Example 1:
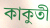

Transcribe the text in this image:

কাকুতী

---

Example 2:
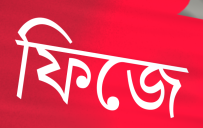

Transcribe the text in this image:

ফিজে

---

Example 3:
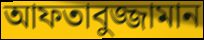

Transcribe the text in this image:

আফতাবুজ্জামান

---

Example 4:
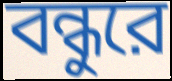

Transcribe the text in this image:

বন্ধুরে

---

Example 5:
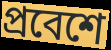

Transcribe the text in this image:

প্রবেশে